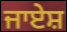
ਜਾਏਸ਼